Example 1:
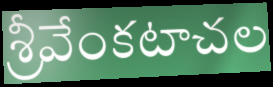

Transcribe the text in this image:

శ్రీవేంకటాచల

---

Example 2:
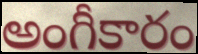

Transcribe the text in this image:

అంగీకారం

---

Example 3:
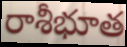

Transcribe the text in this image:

రాశీభూత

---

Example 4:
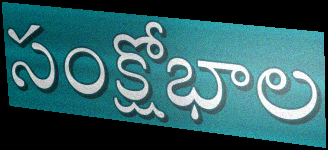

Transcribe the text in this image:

సంక్షోభాల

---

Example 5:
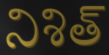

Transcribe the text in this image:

నిశిత్